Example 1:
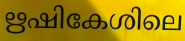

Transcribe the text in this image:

ഋഷികേശിലെ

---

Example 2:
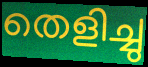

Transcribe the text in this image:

തെളിച്ചു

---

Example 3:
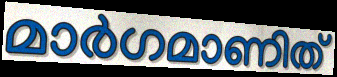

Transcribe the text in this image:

മാർഗമാണിത്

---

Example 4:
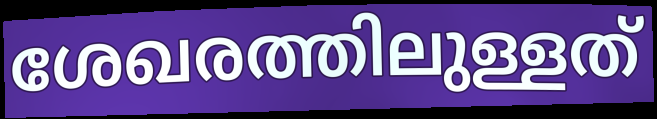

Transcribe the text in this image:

ശേഖരത്തിലുള്ളത്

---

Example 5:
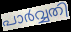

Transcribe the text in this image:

പാർവ്വതി